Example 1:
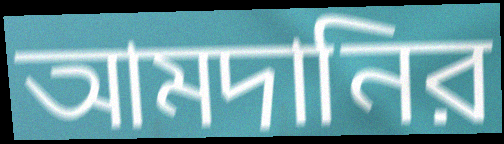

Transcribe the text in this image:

আমদানির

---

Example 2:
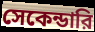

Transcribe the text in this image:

সেকেন্ডারি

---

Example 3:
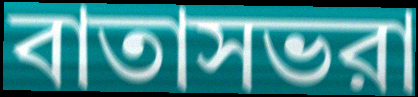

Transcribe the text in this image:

বাতাসভরা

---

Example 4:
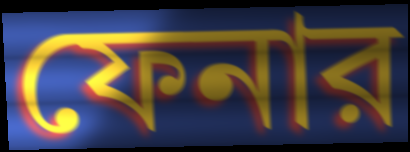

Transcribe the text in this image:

ফেনার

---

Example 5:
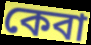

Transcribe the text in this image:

কেবা